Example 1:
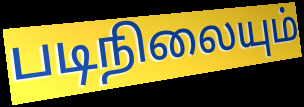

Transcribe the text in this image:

படிநிலையும்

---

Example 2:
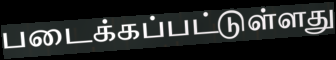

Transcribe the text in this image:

படைக்கப்பட்டுள்ளது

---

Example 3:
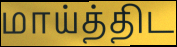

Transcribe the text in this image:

மாய்த்திட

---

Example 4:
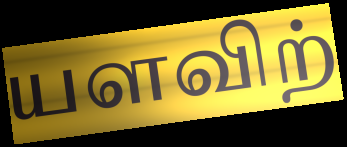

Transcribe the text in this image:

யளவிற்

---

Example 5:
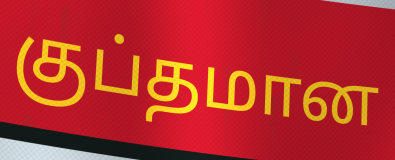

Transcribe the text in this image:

குப்தமான